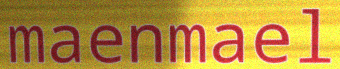
maenmael